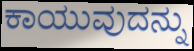
ಕಾಯುವುದನ್ನು